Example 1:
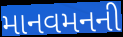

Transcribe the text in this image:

માનવમનની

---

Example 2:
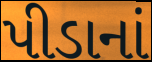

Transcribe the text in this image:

પીડાનાં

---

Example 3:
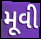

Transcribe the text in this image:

મૂવી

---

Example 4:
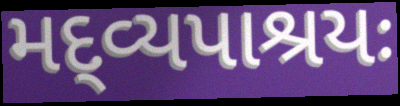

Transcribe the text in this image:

મદ્વ્યપાશ્રયઃ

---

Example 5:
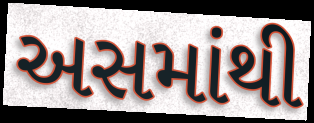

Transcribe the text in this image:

અસમાંથી